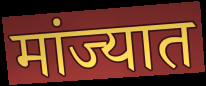
मांज्यात